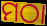
ମଠା